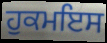
ਹੁਕਮਇਸ